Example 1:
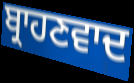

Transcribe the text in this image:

ਬ੍ਰਾਹਣਵਾਦ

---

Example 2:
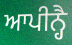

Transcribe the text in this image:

ਆਪੀਨ੍ਹ੍ਹੈ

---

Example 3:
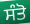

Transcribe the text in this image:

ਸੰਤੋ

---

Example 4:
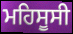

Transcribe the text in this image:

ਮਹਿਸੂਸੀ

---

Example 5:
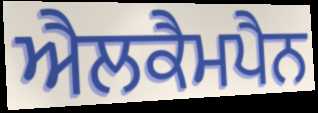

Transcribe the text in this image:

ਐਲਕੈਮਪੈਨ